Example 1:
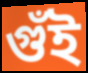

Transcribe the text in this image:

গুঁই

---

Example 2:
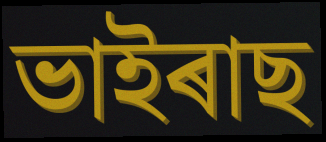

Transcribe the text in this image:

ভাইৰাছ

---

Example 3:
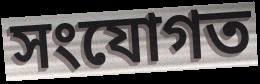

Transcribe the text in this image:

সংযোগত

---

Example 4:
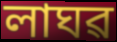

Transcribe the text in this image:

লাঘৱ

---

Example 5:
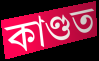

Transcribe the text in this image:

কাণ্ডত